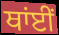
ਥਾਂਈਂ